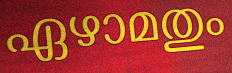
ഏഴാമതും